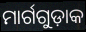
ମାର୍ଗଗୁଡ଼ାକ